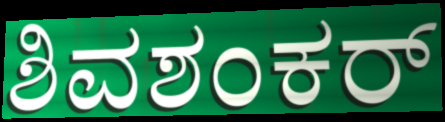
ಶಿವಶಂಕರ್